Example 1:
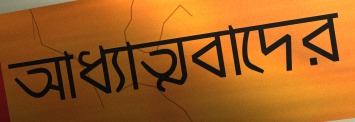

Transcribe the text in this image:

আধ্যাত্মবাদের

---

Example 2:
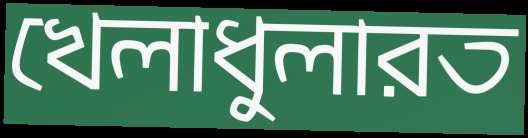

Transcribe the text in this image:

খেলাধুলারত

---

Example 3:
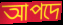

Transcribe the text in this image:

আপদে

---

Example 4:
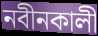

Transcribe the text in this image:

নবীনকালী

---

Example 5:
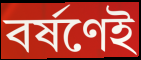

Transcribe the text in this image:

বর্ষণেই